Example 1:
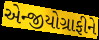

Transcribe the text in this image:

એન્જીયોગ્રાફીને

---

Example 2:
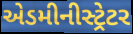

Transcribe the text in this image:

એડમીનીસ્ટ્રેટર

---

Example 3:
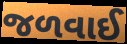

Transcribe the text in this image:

જળવાઈ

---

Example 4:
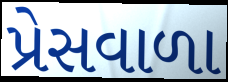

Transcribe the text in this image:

પ્રેસવાળા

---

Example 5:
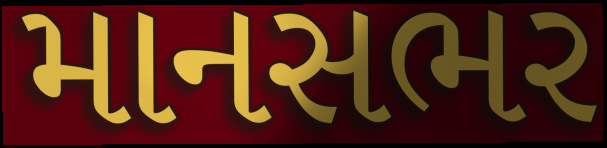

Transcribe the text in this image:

માનસભર